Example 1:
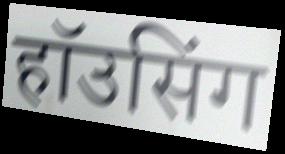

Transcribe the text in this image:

हॉउसिंग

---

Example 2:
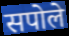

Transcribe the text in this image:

सपोले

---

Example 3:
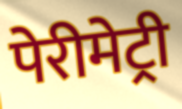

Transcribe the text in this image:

पेरीमेट्री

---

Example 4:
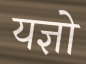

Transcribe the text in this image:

यज्ञो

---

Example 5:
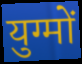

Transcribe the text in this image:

युग्मों